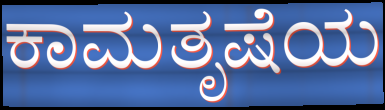
ಕಾಮತೃಷೆಯ